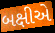
બક્ષીએ